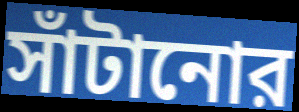
সাঁটানোর